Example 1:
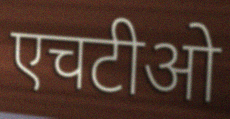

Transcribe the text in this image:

एचटीओ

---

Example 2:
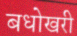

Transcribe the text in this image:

बधोखरी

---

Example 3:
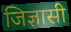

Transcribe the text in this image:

जिज्ञासी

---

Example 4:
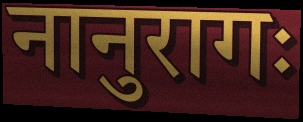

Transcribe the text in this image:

नानुरागः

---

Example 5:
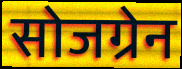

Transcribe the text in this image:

सोजग्रेन